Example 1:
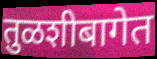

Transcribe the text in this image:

तुळशीबागेत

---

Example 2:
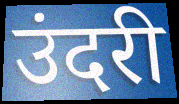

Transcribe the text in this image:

उंदरी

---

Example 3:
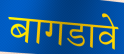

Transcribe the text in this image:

बागडावे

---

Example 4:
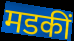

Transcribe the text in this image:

मडकीं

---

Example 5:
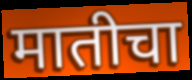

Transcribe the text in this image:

मातीचा